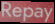
Repay